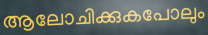
ആലോചിക്കുകപോലും